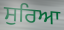
ਸੁਰਿਆ